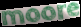
moore